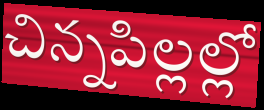
చిన్నపిల్లల్లో